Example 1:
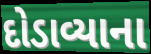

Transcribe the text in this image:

દોડાવ્યાના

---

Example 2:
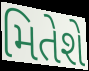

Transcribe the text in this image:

મિતેશે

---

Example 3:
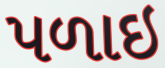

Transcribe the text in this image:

પળાઇ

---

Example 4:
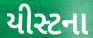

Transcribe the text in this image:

યીસ્ટના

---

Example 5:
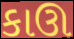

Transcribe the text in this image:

કાઊ